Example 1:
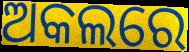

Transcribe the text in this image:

ଅକଲରେ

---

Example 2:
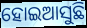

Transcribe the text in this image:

ହୋଇଆସୁଛି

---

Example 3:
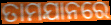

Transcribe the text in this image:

ତାମଯାନରେ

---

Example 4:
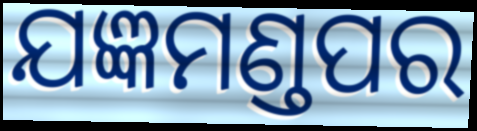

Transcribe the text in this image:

ଯଜ୍ଞମଣ୍ଡପର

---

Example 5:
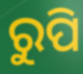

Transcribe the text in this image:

ରୁପି